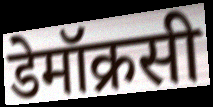
डेमॉक्रसी